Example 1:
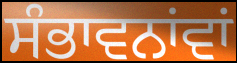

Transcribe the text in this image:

ਸੰਭਾਵਨਾਂਵਾਂ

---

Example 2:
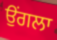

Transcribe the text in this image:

ਉਂਗਲਾ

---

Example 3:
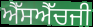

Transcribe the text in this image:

ਐੱਸਐੱਚਜੀ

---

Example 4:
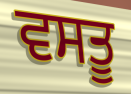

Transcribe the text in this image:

ਵਸਤੂ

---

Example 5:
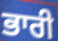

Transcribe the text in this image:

ਭਾਰੀ